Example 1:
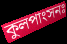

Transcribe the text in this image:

কুলপাংসনঃ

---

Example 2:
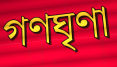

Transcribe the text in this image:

গণঘৃণা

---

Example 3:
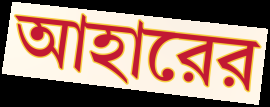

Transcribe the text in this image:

আহারের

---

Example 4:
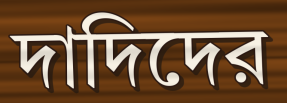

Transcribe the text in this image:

দাদিদের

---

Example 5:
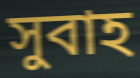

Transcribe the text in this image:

সুবাহ